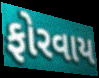
ફોરવાય